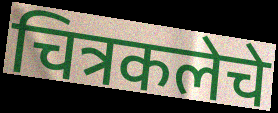
चित्रकलेचे